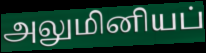
அலுமினியப்